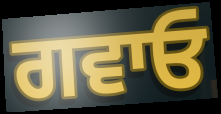
ਗਵਾਓ